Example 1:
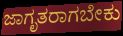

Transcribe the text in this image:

ಜಾಗೃತರಾಗಬೇಕು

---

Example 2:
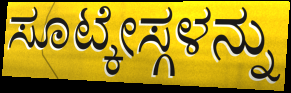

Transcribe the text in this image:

ಸೂಟ್ಕೇಸ್ಗಳನ್ನು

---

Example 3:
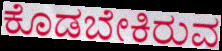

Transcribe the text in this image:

ಕೊಡಬೇಕಿರುವ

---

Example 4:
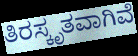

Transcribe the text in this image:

ತಿರಸ್ಕೃತವಾಗಿವೆ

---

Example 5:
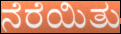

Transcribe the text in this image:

ನೆರೆಯಿತು